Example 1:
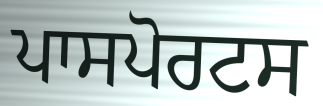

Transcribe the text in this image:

ਪਾਸਪੋਰਟਸ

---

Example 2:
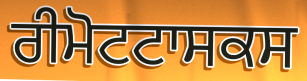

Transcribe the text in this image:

ਰੀਮੋਟਟਾਸਕਸ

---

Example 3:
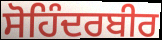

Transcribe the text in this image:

ਸੋਹਿੰਦਰਬੀਰ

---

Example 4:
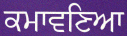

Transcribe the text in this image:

ਕਮਾਵਣਿਆ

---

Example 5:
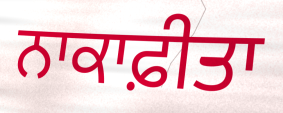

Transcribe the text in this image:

ਨਾਕਾਫ਼ੀਤਾ